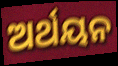
ଅର୍ଥୟନ